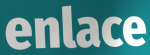
enlace